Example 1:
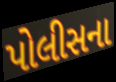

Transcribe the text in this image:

પોલીસના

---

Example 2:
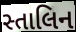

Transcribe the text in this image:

સ્તાલિન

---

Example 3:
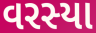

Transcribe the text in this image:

વરસ્યા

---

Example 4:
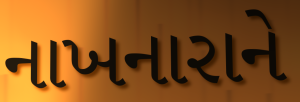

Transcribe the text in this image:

નાખનારાને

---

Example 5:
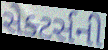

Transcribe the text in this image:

સેક્ટર્સની